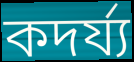
কদর্য্য